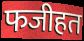
फजीहत